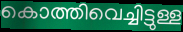
കൊത്തിവെച്ചിട്ടുള്ള